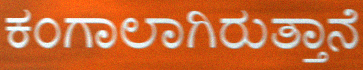
ಕಂಗಾಲಾಗಿರುತ್ತಾನೆ